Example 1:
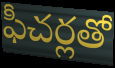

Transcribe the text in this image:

ఫీచర్లతో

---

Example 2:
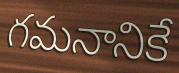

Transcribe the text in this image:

గమనానికే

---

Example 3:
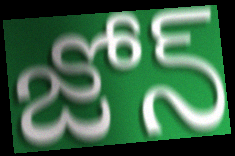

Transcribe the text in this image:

జోన్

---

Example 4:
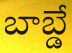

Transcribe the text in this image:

బాబ్డే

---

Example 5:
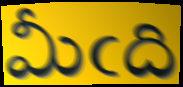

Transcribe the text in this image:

మీఁది